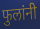
फुलांनी